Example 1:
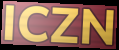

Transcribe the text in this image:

ICZN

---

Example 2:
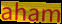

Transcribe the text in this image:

aham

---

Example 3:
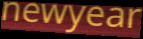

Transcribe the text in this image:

newyear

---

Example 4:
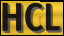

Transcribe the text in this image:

HCL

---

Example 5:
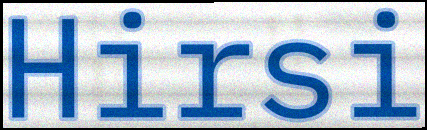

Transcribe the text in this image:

Hirsi